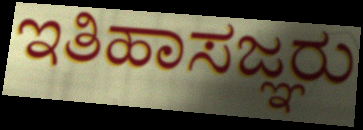
ಇತಿಹಾಸಜ್ಞರು